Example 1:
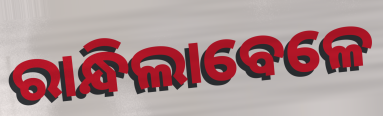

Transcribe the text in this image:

ରାନ୍ଧିଲାବେଳେ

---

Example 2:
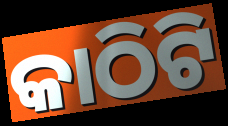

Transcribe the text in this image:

କାଠିଟି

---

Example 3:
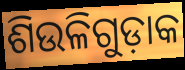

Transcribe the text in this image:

ଶିଉଳିଗୁଡ଼ାକ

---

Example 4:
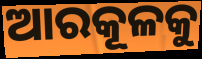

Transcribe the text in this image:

ଆରକୂଳକୁ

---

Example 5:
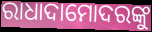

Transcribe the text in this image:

ରାଧାଦାମୋଦରଙ୍କୁ